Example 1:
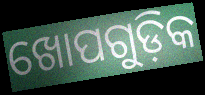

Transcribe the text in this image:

ଖୋପଗୁଡ଼ିକ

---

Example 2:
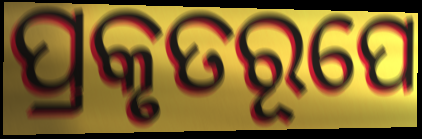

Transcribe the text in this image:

ପ୍ରକୃତରୂପେ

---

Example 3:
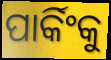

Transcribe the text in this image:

ପାର୍କିଂକୁ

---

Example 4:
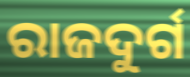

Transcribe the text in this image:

ରାଜଦୁର୍ଗ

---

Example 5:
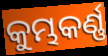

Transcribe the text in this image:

କୁମ୍ଭକର୍ଣ୍ଣ